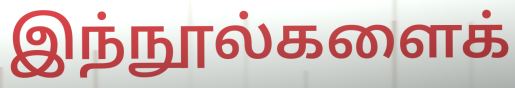
இந்நூல்களைக்